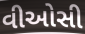
વીઓસી